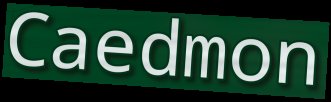
Caedmon